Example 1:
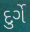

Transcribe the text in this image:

દુર્ગે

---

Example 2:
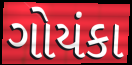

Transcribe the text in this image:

ગોયંકા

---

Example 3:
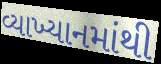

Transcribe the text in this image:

વ્યાખ્યાનમાંથી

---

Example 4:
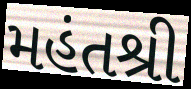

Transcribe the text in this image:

મહંતશ્રી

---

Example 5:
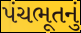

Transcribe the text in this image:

પંચભૂતનું